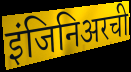
इंजिनिअरची